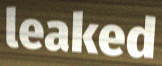
leaked